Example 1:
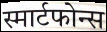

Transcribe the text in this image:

स्मार्टफोन्स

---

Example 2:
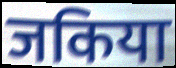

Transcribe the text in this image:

जकिया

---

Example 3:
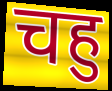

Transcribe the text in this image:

चहु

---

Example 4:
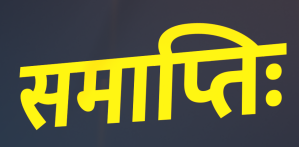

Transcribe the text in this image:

समाप्तिः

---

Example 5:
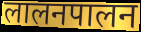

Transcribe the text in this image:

लालनपालन